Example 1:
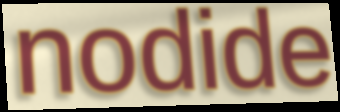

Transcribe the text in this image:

nodide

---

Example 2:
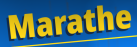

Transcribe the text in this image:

Marathe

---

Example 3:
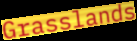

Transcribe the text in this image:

Grasslands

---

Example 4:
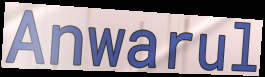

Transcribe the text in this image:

Anwarul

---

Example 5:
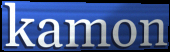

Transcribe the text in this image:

kamon